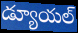
డ్యూయల్